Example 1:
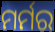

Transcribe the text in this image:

ମର୍ମର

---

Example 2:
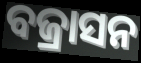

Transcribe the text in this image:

ବଜ୍ରାସନ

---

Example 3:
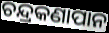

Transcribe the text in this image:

ଚନ୍ଦ୍ରକଣାପାନ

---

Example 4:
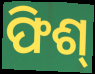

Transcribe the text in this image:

ଫିଶ୍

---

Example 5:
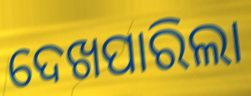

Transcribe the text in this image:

ଦେଖପାରିଲା